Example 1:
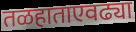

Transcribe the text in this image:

तळहाताएवढ्या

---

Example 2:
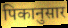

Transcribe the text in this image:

पिकानुसार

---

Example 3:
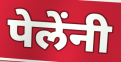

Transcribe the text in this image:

पेलेंनी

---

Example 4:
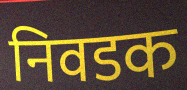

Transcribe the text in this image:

निवडक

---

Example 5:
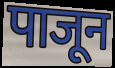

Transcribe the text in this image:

पाजून